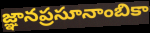
జ్ఞానప్రసూనాంబికా